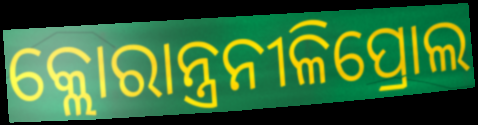
କ୍ଲୋରାନ୍ତ୍ରନୀଳିପ୍ରୋଲ